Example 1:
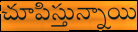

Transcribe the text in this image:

చూపిస్తున్నాయి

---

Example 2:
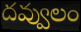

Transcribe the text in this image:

దవ్వులం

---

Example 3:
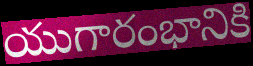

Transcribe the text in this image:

యుగారంభానికి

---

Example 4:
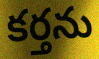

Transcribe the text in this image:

కర్తను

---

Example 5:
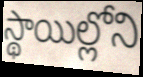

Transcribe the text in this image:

స్థాయిల్లోని